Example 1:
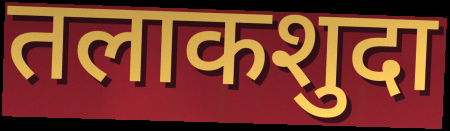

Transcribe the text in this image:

तलाकशुदा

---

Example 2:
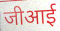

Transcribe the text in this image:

जीआई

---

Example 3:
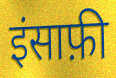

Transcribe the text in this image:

इंसाफ़ी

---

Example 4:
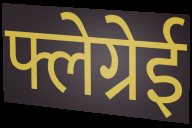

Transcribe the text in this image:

फ्लेग्रेई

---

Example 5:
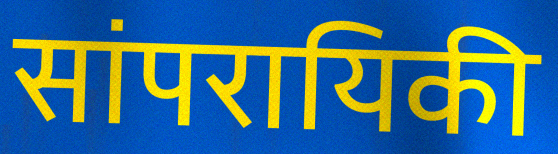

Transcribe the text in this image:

सांपरायिकी